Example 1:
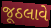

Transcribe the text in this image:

જૂઠલાવે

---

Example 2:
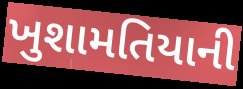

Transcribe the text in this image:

ખુશામતિયાની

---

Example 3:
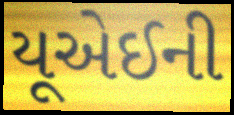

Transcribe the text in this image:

યૂએઈની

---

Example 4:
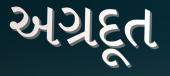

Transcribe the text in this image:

અગ્રદૂત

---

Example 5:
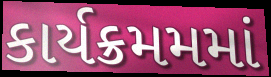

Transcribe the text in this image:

કાર્યક્રમમમાં